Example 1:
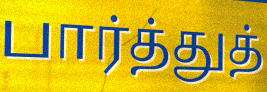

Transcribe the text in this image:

பார்த்துத்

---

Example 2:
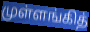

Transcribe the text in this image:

முள்ளங்கித்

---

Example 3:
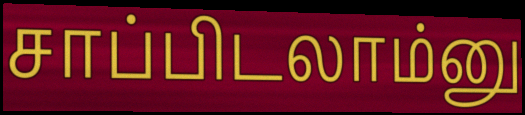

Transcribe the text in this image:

சாப்பிடலாம்னு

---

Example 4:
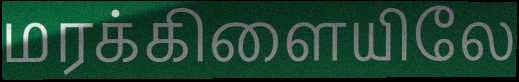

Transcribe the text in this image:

மரக்கிளையிலே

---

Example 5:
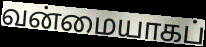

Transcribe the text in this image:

வன்மையாகப்